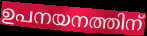
ഉപനയനത്തിന്